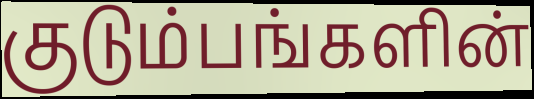
குடும்பங்களின்